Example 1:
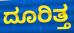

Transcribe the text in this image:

ದೂರಿತ್ತ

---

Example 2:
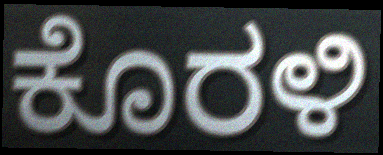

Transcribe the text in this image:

ಕೊರಳಿ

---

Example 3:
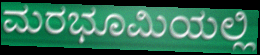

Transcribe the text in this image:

ಮರಭೂಮಿಯಲ್ಲಿ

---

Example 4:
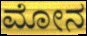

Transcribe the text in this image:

ಮೋನ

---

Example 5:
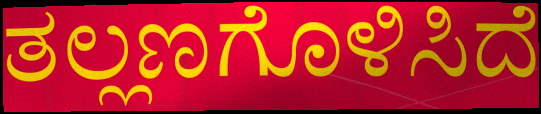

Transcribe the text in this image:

ತಲ್ಲಣಗೊಳಿಸಿದೆ